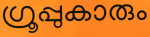
ഗ്രൂപ്പുകാരും